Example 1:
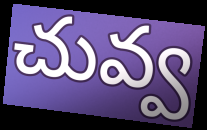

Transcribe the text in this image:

చువ్వ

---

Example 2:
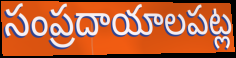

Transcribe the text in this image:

సంప్రదాయాలపట్ల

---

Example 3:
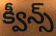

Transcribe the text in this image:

క్వీన్స్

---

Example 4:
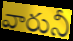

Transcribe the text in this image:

వారునీ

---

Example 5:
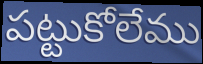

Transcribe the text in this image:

పట్టుకోలేము